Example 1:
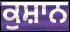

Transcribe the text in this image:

ਕੁਸ਼ਾਨ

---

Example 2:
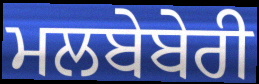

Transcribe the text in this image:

ਮਲਬੇਬੇਰੀ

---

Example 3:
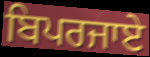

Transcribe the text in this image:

ਬਿਪਰਜਾਏ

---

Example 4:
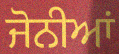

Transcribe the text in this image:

ਜੋਨੀਆਂ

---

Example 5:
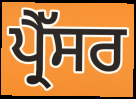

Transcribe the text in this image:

ਪ੍ਰੈੱਸਰ